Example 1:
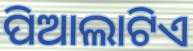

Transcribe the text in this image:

ପିଆଲାଟିଏ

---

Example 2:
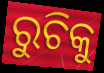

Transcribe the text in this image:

ରୁଚିକୁ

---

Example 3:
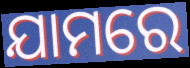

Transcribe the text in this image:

ଯାମରେ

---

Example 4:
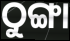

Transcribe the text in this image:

ଠୁଙ୍ଗା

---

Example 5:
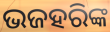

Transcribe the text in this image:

ଭଜହରିଙ୍କ